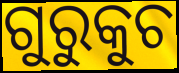
ଗୁରୁକୁଚ